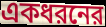
একধরনের